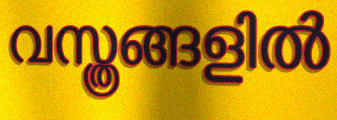
വസ്ത്രങ്ങളിൽ